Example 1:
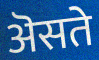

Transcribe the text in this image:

ऄसते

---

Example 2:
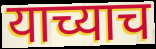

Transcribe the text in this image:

याच्याच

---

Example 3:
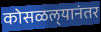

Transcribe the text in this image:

कोसळल्यानंतर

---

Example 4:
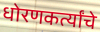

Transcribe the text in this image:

धोरणकर्त्यांचे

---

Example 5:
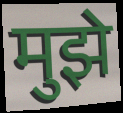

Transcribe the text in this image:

मुझे